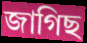
জাগিছ